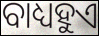
ବାଧ୍ୟହୁଏ